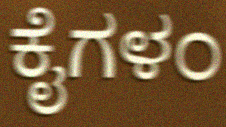
ಕೈಗಳಂ